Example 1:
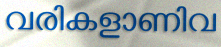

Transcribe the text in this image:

വരികളാണിവ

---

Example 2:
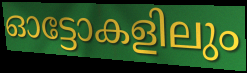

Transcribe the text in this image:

ഓട്ടോകളിലും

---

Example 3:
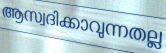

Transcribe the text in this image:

ആസ്വദിക്കാവുന്നതല്ല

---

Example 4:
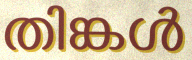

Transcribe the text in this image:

തിങ്കൾ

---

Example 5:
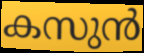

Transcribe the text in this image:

കസുൻ